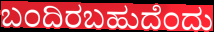
ಬಂದಿರಬಹುದೆಂದು